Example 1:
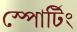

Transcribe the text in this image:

স্পোর্টিং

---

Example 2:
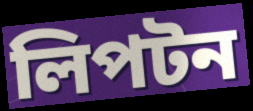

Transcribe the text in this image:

লিপটন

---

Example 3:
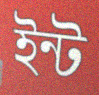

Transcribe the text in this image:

ইন্ট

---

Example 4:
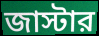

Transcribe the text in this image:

জাস্টার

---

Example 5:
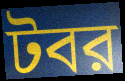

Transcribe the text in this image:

টবর